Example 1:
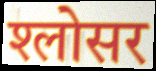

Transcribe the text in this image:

श्लोसर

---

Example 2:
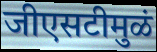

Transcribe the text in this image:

जीएसटीमुळं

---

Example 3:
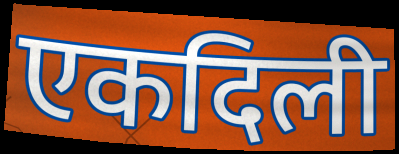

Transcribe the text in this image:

एकदिली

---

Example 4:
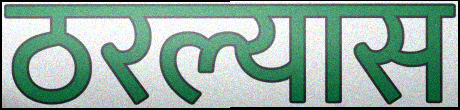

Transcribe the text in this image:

ठरल्यास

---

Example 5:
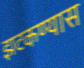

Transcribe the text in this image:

झटकण्यास